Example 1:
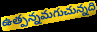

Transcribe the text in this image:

ఉత్పన్నమగుచున్నది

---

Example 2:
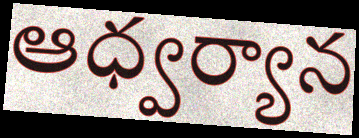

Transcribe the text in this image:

ఆధ్వర్యాన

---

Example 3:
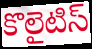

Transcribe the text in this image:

కొలైటిస్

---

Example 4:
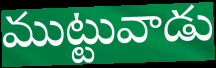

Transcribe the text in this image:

ముట్టువాడు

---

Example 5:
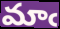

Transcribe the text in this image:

మాఁ